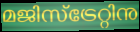
മജിസ്ട്രേറ്റിനു